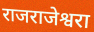
राजराजेश्वरा